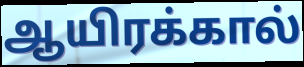
ஆயிரக்கால்